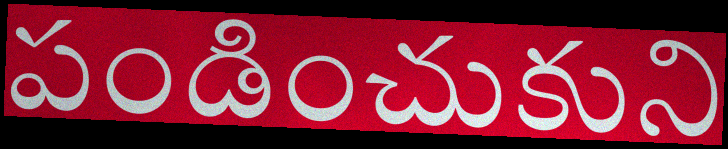
పండించుకుని